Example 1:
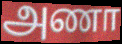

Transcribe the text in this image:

அணா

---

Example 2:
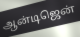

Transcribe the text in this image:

ஆன்டிஜென்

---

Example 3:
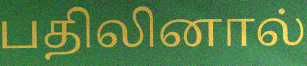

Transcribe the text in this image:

பதிலினால்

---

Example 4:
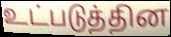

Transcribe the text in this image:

உட்படுத்தின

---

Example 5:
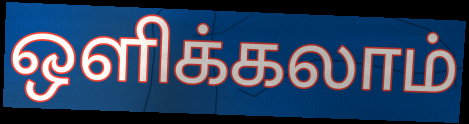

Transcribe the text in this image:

ஒளிக்கலாம்